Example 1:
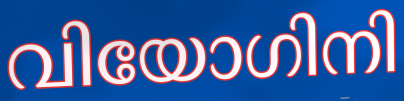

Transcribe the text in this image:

വിയോഗിനി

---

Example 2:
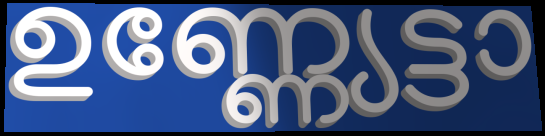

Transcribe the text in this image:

ഉണ്ണ്യേട്ടാ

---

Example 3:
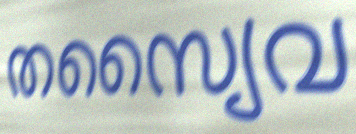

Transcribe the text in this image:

തസ്യൈവ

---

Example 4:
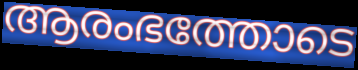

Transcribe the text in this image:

ആരംഭത്തോടെ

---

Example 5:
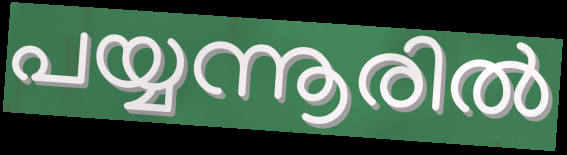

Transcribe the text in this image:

പയ്യന്നൂരിൽ